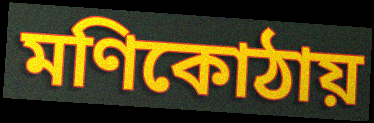
মণিকোঠায়